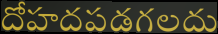
దోహదపడగలదు